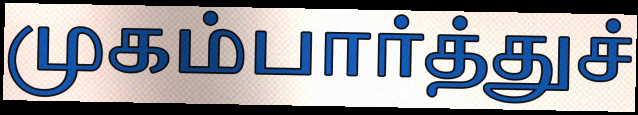
முகம்பார்த்துச்